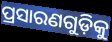
ପ୍ରସାରଣଗୁଡ଼ିକୁ